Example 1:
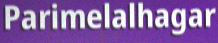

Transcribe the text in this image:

Parimelalhagar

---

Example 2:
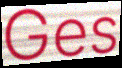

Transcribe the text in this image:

Ges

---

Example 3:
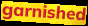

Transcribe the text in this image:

garnished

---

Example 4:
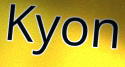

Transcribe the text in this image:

Kyon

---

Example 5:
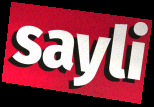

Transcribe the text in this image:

sayli